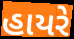
હાયરે